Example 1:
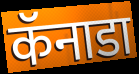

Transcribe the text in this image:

कॅनाडा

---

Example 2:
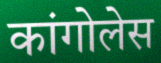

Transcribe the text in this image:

कांगोलेस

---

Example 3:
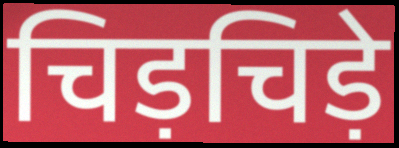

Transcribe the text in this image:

चिड़चिड़े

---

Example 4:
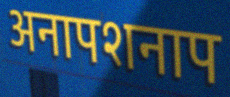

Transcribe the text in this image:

अनापशनाप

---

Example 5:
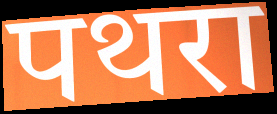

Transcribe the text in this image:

पथरा